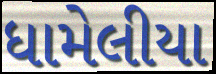
ધામેલીયા